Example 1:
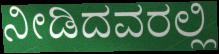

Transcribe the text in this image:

ನೀಡಿದವರಲ್ಲಿ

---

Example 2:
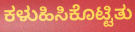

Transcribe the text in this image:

ಕಳುಹಿಸಿಕೊಟ್ಟಿತು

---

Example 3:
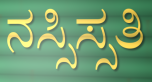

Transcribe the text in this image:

ನಸ್ಸಿಸ್ಸತಿ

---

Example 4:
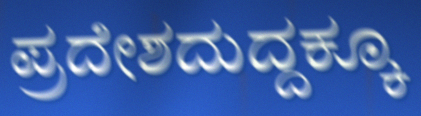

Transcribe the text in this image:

ಪ್ರದೇಶದುದ್ದಕ್ಕೂ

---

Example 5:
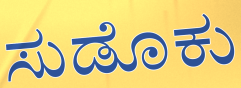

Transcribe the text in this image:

ಸುಡೊಕು